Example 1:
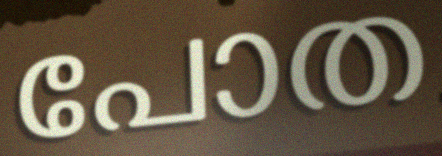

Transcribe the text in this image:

പോത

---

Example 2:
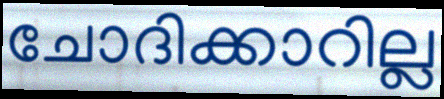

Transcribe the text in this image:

ചോദിക്കാറില്ല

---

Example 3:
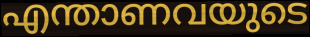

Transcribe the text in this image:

എന്താണവയുടെ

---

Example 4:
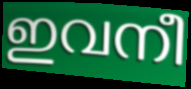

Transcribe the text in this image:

ഇവനീ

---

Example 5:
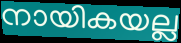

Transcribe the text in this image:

നായികയല്ല